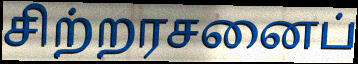
சிற்றரசனைப்